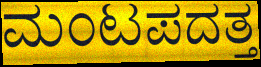
ಮಂಟಪದತ್ತ